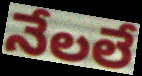
నేలలే